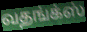
வதங்க்ஸ்